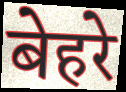
बेहरे